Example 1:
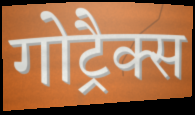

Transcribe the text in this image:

गोट्रैक्स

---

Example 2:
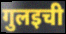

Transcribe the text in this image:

गुलइची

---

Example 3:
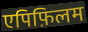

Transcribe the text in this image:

एपिफ़िलम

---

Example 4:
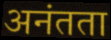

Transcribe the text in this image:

अनंतता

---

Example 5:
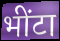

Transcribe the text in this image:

भींटा